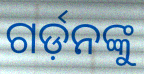
ଗର୍ଡ଼ନଙ୍କୁ